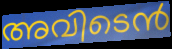
അവിടെൻ